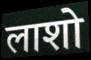
लाशो